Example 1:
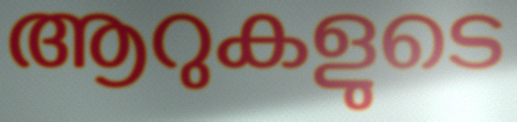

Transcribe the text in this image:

ആറുകളുടെ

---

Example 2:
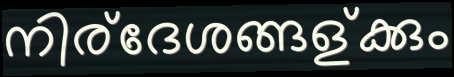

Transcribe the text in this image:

നിര്ദേശങ്ങള്ക്കും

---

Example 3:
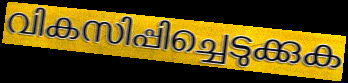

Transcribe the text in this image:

വികസിപ്പിച്ചെടുക്കുക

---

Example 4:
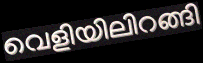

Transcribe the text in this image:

വെളിയിലിറങ്ങി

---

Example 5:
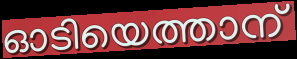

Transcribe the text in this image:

ഓടിയെത്താന്